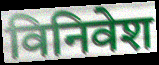
विनिवेश